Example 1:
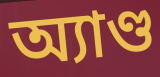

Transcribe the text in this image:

অ্যাণ্ড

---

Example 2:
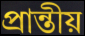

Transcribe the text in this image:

প্ৰান্তীয়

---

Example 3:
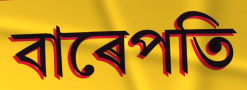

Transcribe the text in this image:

বাৰেপতি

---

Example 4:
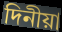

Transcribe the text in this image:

দিনীয়া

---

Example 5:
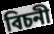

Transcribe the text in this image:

বিচনী